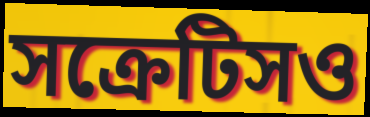
সক্রেটিসও